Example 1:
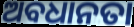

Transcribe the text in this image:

ଅବଧାନତା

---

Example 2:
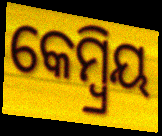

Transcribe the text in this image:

କେମ୍ବ୍ରିୟ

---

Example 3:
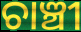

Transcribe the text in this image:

ଚାଞ୍ଚୀ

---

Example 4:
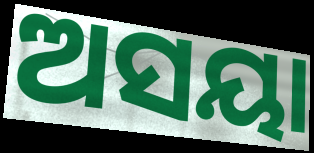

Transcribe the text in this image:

ଅସୟା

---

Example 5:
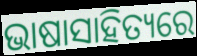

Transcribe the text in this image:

ଭାଷାସାହିତ୍ୟରେ